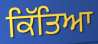
ਕਿੱਤਿਆ